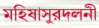
মহিষাসুরদলনী